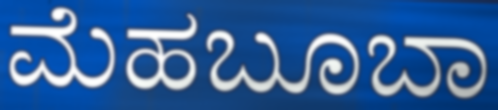
ಮೆಹಬೂಬಾ